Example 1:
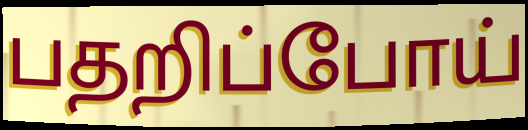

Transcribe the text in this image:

பதறிப்போய்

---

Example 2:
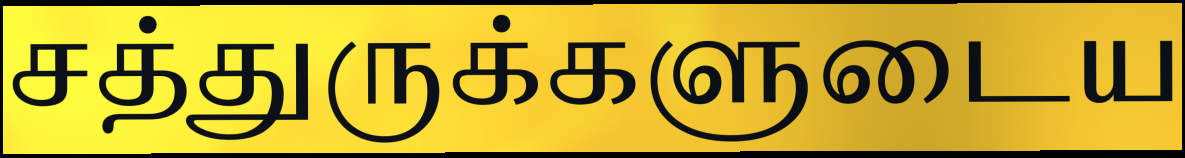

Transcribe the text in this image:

சத்துருக்களுடைய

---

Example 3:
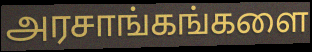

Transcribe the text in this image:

அரசாங்கங்களை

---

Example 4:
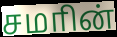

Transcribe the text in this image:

சமரின்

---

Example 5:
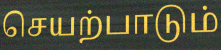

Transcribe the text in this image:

செயற்பாடும்